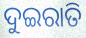
ଦୁଇରାତି